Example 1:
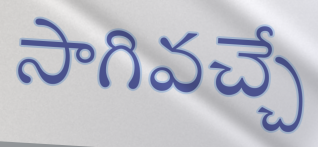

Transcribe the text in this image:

సాగివచ్చే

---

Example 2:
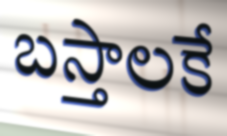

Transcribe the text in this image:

బస్తాలకే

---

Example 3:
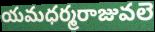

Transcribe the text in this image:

యమధర్మరాజువలె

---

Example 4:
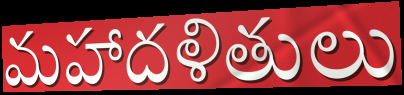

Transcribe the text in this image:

మహాదళితులు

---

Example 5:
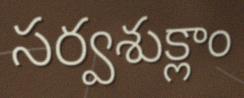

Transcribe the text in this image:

సర్వశుక్లాం